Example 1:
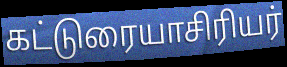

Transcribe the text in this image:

கட்டுரையாசிரியர்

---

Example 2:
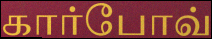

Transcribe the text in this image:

கார்போவ்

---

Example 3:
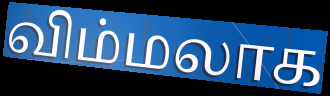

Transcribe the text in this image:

விம்மலாக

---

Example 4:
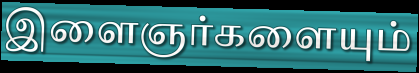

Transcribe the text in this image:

இளைஞர்களையும்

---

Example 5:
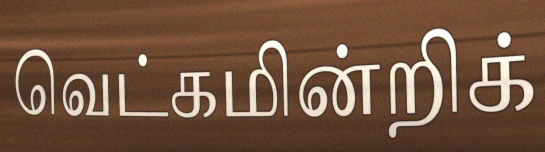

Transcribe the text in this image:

வெட்கமின்றிக்